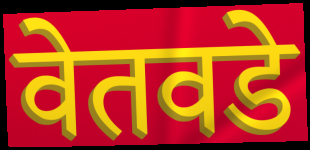
वेतवडे